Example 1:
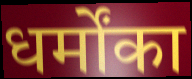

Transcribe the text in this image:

धर्मोंका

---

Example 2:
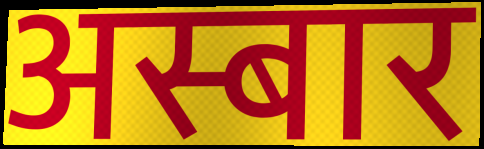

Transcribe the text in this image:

अस्बार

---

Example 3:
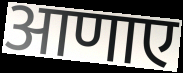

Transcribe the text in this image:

आणाए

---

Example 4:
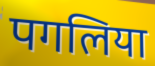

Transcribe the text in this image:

पगलिया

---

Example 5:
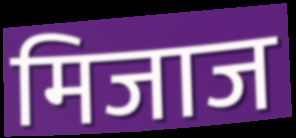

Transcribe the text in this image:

मिजाज